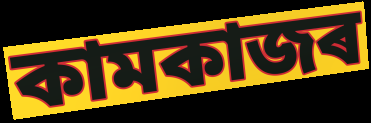
কামকাজৰ